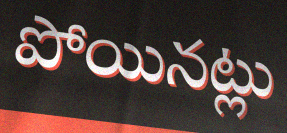
పోయినట్లు